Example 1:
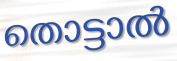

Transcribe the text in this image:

തൊട്ടാൽ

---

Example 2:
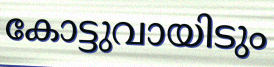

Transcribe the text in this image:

കോട്ടുവായിടും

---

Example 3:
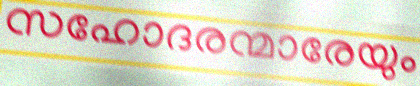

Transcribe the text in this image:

സഹോദരന്മാരേയും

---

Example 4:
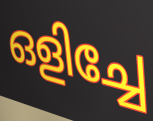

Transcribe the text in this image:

ഒളിച്ചേ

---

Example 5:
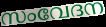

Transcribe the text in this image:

സംവേദന